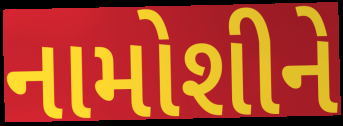
નામોશીને